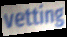
vetting